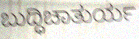
ಬುದ್ಧಿಚಾತುರ್ಯ